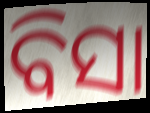
ବିସା